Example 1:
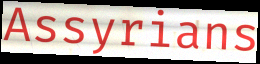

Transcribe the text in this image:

Assyrians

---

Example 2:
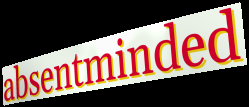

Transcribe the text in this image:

absentminded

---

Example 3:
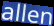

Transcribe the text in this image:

allen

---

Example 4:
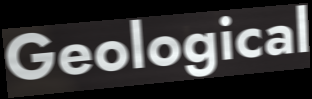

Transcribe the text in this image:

Geological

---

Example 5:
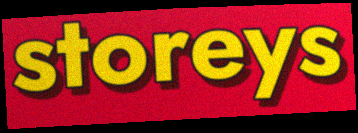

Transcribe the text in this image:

storeys